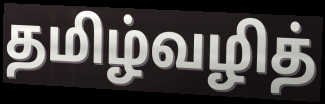
தமிழ்வழித்